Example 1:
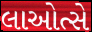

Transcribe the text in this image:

લાઓત્સે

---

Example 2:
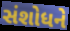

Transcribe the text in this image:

સંશોધને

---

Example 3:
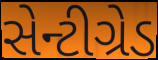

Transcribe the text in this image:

સેન્ટીગ્રેડ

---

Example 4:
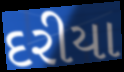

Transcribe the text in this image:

દરીયા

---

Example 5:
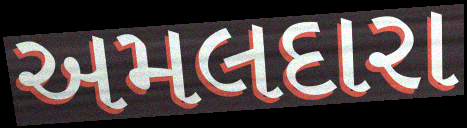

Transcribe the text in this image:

અમલદારા